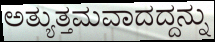
ಅತ್ಯುತ್ತಮವಾದದ್ದನ್ನು